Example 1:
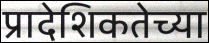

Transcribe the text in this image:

प्रादेशिकतेच्या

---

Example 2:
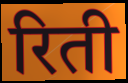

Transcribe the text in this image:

रिती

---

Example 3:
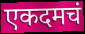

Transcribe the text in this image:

एकदमचं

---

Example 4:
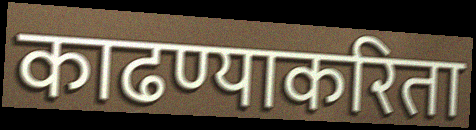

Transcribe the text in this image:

काढण्याकरिता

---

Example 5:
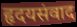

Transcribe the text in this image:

हृदयसंवाद